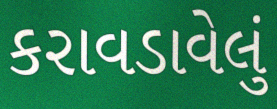
કરાવડાવેલું